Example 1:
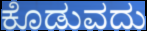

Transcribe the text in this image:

ಕೊಡುವದು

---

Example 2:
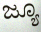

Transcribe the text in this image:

ಜ್ಯೂ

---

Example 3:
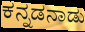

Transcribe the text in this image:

ಕನ್ನಡನಾಡು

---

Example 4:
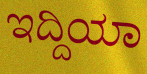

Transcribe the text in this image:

ಇದ್ದಿಯಾ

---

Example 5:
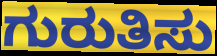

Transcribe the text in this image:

ಗುರುತಿಸು